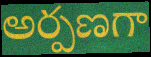
అర్పణగా